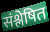
संश्लेषित